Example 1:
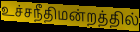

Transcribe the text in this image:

உச்சநீதிமன்றத்தில்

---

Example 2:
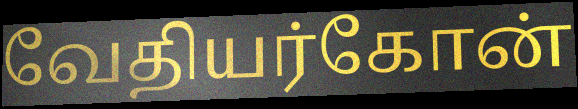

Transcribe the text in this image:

வேதியர்கோன்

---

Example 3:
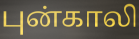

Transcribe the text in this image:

புன்காலி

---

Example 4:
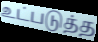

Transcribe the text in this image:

உட்படுத்த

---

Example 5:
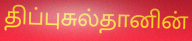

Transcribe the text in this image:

திப்புசுல்தானின்